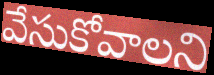
వేసుకోవాలని